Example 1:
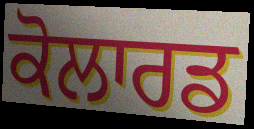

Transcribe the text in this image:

ਕੋਲਾਰਡ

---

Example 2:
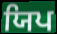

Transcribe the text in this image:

ਯਿਪ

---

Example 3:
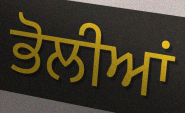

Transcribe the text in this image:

ਭੋਲੀਆਂ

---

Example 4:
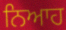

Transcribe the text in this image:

ਨਿਆਹ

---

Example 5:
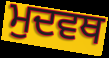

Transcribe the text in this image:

ਮੁਦਵਥ